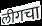
लीगचा